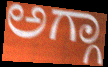
ಅಗ್ಗಾ